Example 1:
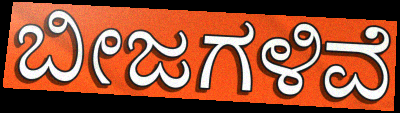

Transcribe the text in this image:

ಬೀಜಗಳಿವೆ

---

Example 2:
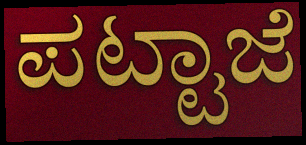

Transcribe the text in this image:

ಪಟ್ಟಾಜೆ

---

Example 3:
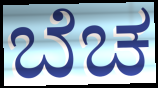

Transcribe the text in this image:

ಬೆಚ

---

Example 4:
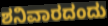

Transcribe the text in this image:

ಶನಿವಾರದಂದು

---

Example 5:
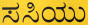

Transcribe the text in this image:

ಸಸಿಯು